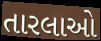
તારલાઓ